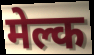
मेल्क